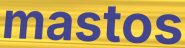
mastos